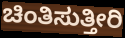
ಚಿಂತಿಸುತ್ತೀರಿ